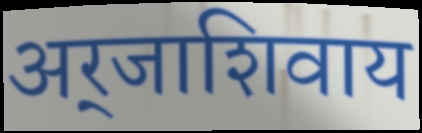
अर्जाशिवाय